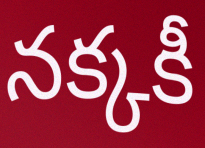
నక్కకీ